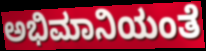
ಅಭಿಮಾನಿಯಂತೆ